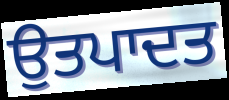
ਉਤਪਾਦਤ